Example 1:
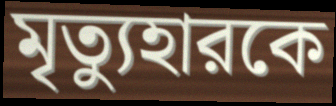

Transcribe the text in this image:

মৃত্যুহারকে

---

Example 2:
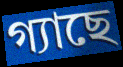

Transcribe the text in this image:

গ্যাছে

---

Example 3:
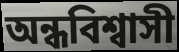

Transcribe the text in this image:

অন্ধবিশ্বাসী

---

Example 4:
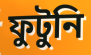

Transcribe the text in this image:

ফুটুনি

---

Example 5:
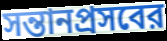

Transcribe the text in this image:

সন্তানপ্রসবের